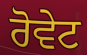
ਰੋਵੇਟ